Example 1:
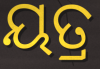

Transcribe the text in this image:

ୟତ୍ର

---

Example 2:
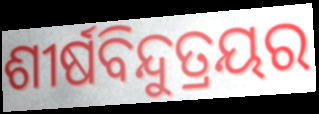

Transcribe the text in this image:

ଶୀର୍ଷବିନ୍ଦୁତ୍ରୟର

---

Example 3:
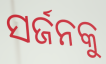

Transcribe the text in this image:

ସର୍ଜନକୁ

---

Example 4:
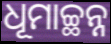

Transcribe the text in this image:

ଧୂମାଚ୍ଛନ୍ନ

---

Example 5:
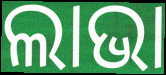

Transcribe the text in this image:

ଲାଭା